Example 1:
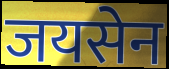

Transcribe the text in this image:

जयसेन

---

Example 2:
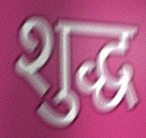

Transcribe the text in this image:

शुद्ध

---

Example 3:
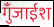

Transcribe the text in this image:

गुँजाईश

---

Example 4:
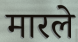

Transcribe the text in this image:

मारले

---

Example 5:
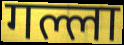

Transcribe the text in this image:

गल्ला